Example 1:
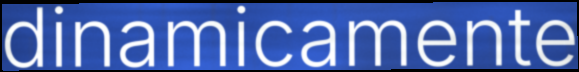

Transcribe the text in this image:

dinamicamente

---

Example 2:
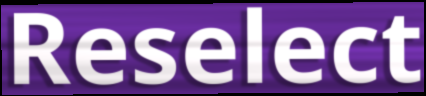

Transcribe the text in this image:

Reselect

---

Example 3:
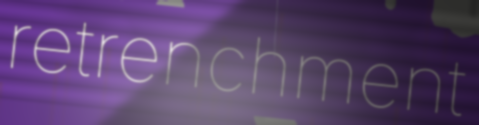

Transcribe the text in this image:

retrenchment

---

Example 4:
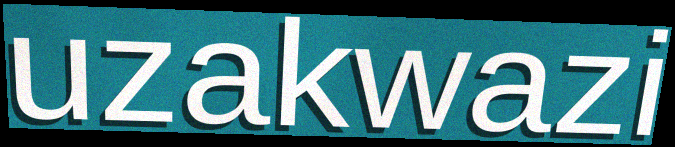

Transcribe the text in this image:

uzakwazi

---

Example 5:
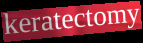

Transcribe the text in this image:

keratectomy